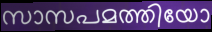
സാസപമത്തിയോ